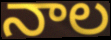
నాల